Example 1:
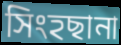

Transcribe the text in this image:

সিংহছানা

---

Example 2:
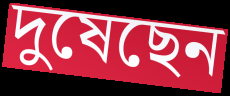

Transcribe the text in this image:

দুষেছেন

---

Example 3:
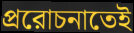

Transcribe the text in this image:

প্ররোচনাতেই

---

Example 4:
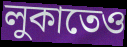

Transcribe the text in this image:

লুকাতেও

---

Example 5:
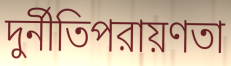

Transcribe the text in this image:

দুর্নীতিপরায়ণতা